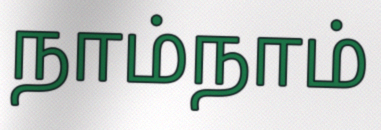
நாம்நாம்